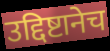
उद्दिष्टानेच